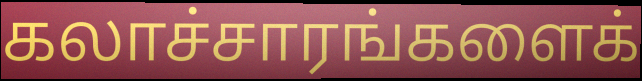
கலாச்சாரங்களைக்